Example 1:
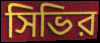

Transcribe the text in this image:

সিভির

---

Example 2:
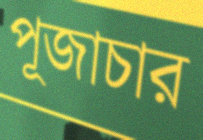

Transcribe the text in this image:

পূজাচার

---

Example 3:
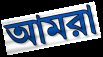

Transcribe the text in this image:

আমরা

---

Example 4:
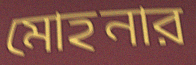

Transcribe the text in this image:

মোহনার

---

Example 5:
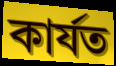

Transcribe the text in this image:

কার্যত